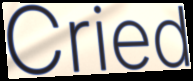
Cried